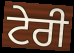
ਟੇਰੀ